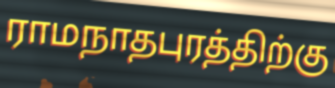
ராமநாதபுரத்திற்கு